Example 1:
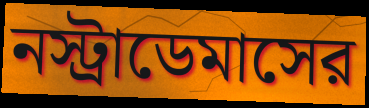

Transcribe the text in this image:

নস্ট্রাডেমাসের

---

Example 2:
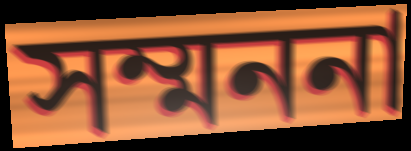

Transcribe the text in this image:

সম্মননা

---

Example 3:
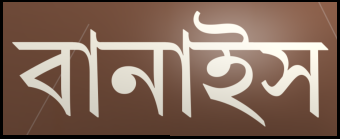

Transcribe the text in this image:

বানাইস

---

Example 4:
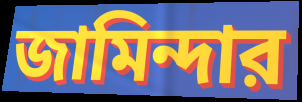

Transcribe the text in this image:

জামিন্দার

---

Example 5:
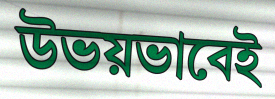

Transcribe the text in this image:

উভয়ভাবেই